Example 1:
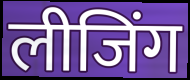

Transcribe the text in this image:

लीजिंग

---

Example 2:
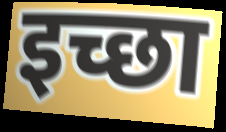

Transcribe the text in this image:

इच्छा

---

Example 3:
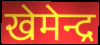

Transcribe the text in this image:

खेमेन्द्र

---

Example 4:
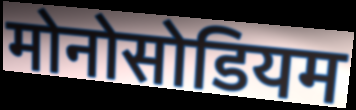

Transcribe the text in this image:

मोनोसोडियम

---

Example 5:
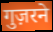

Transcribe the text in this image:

गुज़रने